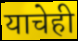
याचेही